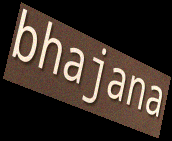
bhajana